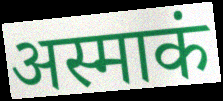
अस्माकं